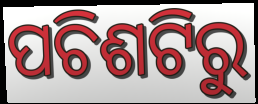
ପଚିଶଟିରୁ